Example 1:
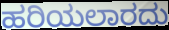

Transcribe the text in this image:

ಹರಿಯಲಾರದು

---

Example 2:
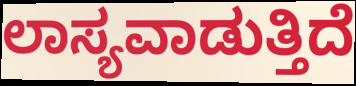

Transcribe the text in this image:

ಲಾಸ್ಯವಾಡುತ್ತಿದೆ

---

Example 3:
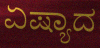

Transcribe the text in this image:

ಏಷ್ಯಾದ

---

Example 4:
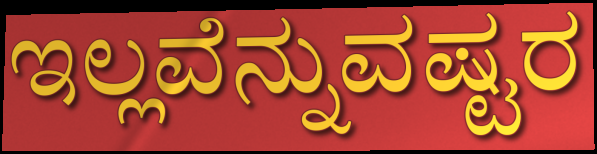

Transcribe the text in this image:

ಇಲ್ಲವೆನ್ನುವಷ್ಟರ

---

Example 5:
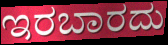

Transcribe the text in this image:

ಇರಬಾರದು